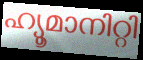
ഹ്യൂമാനിറ്റി